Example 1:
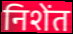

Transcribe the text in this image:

निशेंत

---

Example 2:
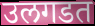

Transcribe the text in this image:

उलगडत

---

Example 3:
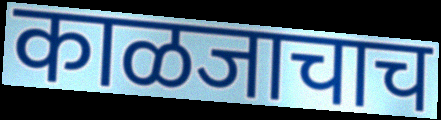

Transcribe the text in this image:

काळजाचाच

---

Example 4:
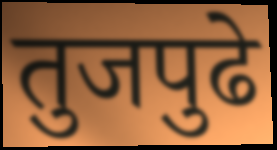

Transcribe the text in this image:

तुजपुढे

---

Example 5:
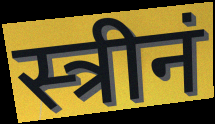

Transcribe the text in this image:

स्त्रीनं